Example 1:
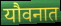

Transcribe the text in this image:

यौवनात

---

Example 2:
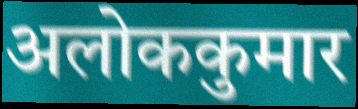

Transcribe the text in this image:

अलोककुमार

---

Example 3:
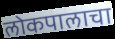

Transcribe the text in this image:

लोकपालाचा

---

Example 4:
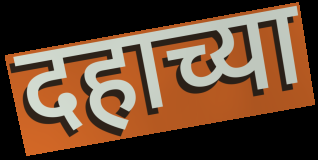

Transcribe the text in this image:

दहाच्या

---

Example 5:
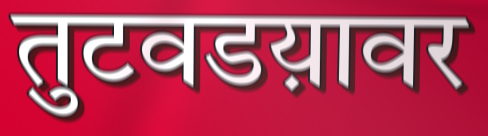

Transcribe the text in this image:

तुटवडय़ावर